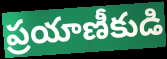
ప్రయాణీకుడి